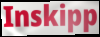
Inskipp